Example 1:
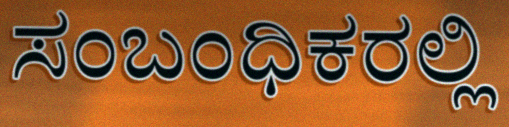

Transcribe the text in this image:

ಸಂಬಂಧಿಕರಲ್ಲಿ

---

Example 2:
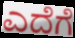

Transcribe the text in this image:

ಎದೆಗೆ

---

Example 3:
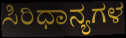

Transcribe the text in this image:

ಸಿರಿಧಾನ್ಯಗಳ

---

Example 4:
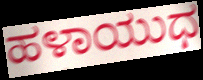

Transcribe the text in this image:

ಹಳಾಯುಧ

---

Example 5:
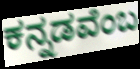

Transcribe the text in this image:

ಕನ್ನಡವೆಂಬ